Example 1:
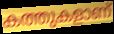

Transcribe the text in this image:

കത്തുകളാണ്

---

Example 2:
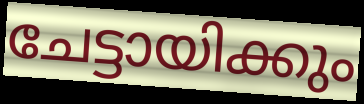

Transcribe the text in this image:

ചേട്ടായിക്കും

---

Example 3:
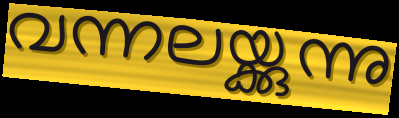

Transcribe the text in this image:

വന്നലയ്ക്കുന്നു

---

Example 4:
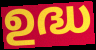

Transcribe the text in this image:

ഉദ്ധ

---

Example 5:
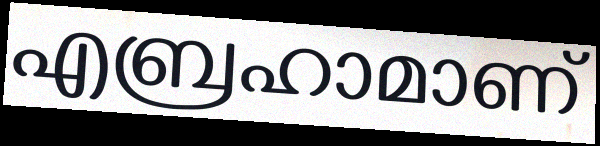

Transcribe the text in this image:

എബ്രഹാമാണ്